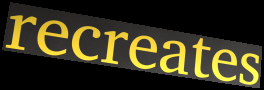
recreates